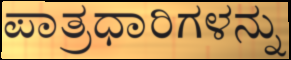
ಪಾತ್ರಧಾರಿಗಳನ್ನು